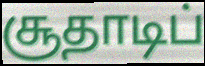
சூதாடிப்